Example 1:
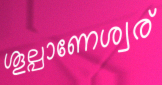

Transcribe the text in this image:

ശൂല്പാണേശ്വര്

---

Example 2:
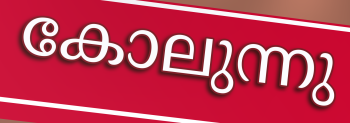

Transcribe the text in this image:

കോലുന്നു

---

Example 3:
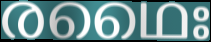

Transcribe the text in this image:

രഥൈഃ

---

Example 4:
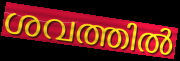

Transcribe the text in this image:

ശവത്തിൽ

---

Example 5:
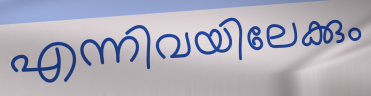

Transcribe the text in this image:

എന്നിവയിലേക്കും